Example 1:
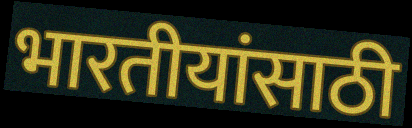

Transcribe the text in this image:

भारतीयांसाठी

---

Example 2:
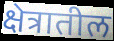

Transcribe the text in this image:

क्षेत्रातील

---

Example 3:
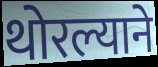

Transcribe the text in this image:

थोरल्याने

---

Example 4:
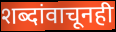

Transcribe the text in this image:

शब्दांवाचूनही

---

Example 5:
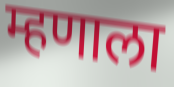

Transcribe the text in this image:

म्हणाला